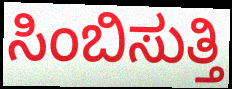
ಸಿಂಬಿಸುತ್ತಿ